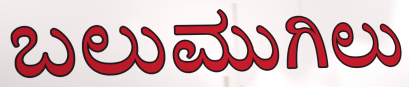
ಬಲುಮುಗಿಲು